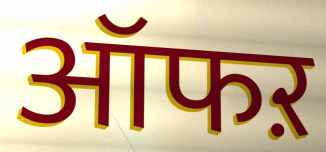
ऑफऱ